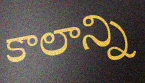
కాలాన్ని